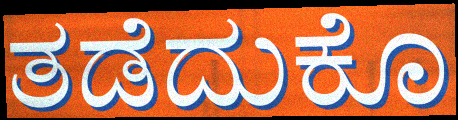
ತಡೆದುಕೊ